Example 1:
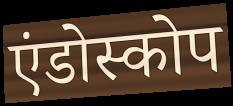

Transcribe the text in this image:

एंडोस्कोप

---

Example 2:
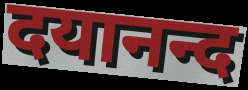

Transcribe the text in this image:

दयानन्द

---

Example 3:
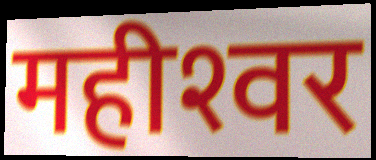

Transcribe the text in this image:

महीश्वर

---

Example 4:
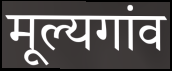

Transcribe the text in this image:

मूल्यगांव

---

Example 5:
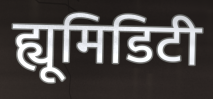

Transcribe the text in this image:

ह्यूमिडिटी